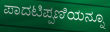
ಪಾದಟಿಪ್ಪಣಿಯನ್ನೂ